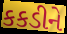
કકડીને